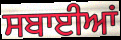
ਸਬਾਈਆਂ